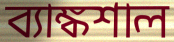
ব্যাঙ্কশাল